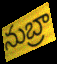
నుబ్రా